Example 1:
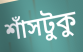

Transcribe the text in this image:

শাঁসটুকু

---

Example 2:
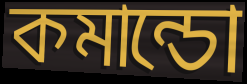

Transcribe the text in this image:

কমান্ডো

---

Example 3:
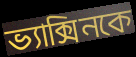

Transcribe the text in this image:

ভ্যাক্সিনকে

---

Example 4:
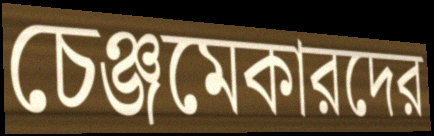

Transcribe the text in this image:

চেঞ্জমেকারদের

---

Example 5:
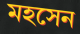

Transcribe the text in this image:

মহসেন